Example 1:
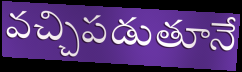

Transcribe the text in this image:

వచ్చిపడుతూనే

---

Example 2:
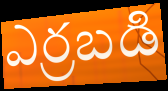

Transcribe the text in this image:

ఎర్రబడి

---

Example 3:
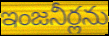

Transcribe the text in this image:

ఇంజనీర్లను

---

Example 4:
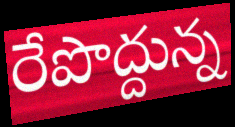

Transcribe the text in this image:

రేపొద్దున్న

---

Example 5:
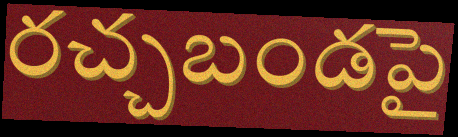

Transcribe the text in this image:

రచ్చబండపై